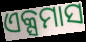
ଏକ୍ସମାସ